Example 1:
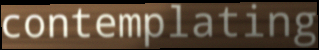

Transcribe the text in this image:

contemplating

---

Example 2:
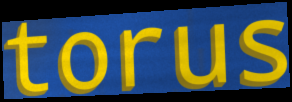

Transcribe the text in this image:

torus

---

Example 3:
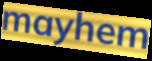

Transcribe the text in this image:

mayhem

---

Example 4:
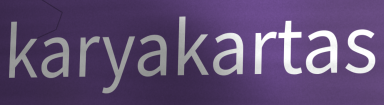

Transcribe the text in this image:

karyakartas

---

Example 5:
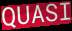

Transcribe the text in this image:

QUASI